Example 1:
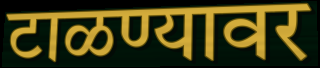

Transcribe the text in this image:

टाळण्यावर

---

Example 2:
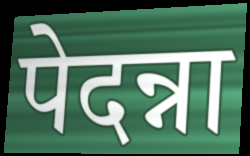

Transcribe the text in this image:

पेदन्ना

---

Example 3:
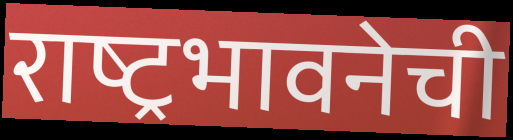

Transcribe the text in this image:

राष्ट्रभावनेची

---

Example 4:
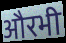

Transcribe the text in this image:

औरभी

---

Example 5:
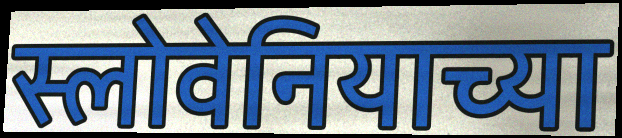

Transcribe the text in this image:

स्लोवेनियाच्या